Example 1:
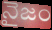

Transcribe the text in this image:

నైజం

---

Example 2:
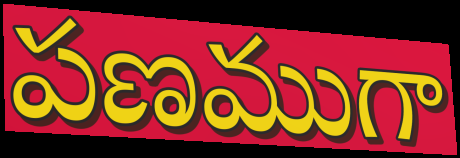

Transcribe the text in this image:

పణముగా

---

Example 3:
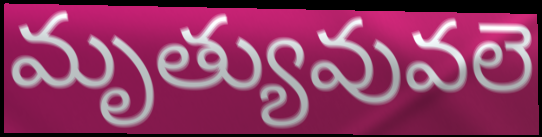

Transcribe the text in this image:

మృత్యువువలె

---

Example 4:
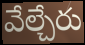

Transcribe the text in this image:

వేల్చేరు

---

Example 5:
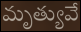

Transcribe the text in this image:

మృత్యువే